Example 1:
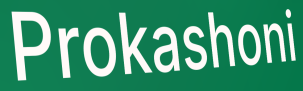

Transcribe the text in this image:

Prokashoni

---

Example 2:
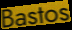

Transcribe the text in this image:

Bastos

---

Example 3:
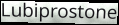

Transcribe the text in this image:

Lubiprostone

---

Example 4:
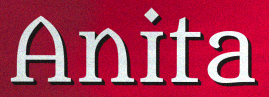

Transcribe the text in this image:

Anita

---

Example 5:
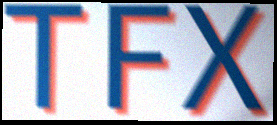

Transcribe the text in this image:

TFX